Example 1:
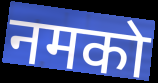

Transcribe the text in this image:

नमको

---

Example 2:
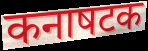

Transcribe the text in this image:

कनाषटक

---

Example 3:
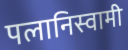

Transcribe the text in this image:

पलानिस्वामी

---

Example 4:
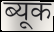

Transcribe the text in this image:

ब्यूक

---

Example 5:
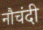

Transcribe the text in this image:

नौचंदी